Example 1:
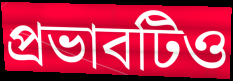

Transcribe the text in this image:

প্রভাবটিও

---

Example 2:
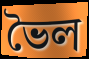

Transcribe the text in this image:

ভৈল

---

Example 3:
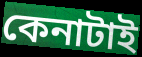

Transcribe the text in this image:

কেনাটাই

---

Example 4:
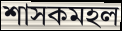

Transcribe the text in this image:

শাসকমহল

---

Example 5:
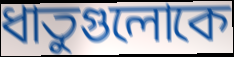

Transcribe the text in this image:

ধাতুগুলোকে